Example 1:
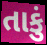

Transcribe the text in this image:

તાકું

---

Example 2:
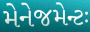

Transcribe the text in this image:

મેનેજમેન્ટઃ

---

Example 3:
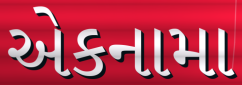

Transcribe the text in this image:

એકનામા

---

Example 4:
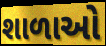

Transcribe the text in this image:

શાળાઓ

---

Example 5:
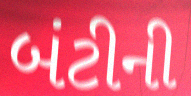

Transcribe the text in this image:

બંટીની